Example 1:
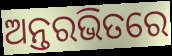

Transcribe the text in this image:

ଅନ୍ତରଭିତରେ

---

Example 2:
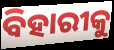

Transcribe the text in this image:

ବିହାରୀକୁ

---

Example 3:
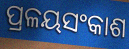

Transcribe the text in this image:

ପ୍ରଳୟସଂକାଶ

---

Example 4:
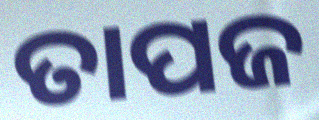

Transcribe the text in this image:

ତାପଜ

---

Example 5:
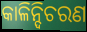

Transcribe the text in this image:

କାଳିନ୍ଦିଚରଣ